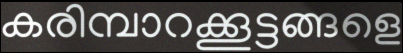
കരിമ്പാറക്കൂട്ടങ്ങളെ